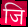
जि